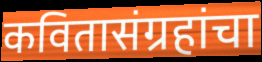
कवितासंग्रहांचा